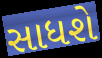
સાધશે